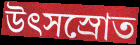
উৎসস্রোত